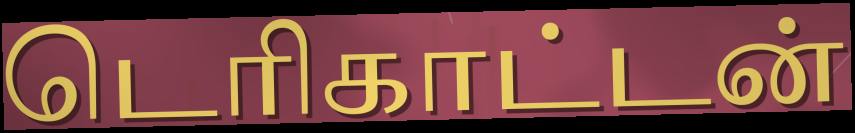
டெரிகாட்டன்